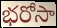
భరోసా